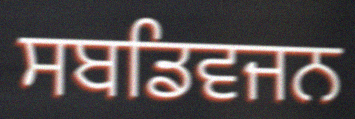
ਸਬਡਿਵਜਨ